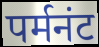
पर्मनंट